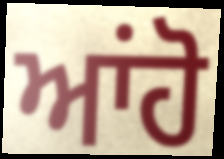
ਆਂਹੋ